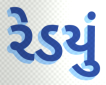
રેડયું